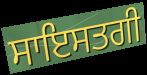
ਸਾਇਸਤਗੀ